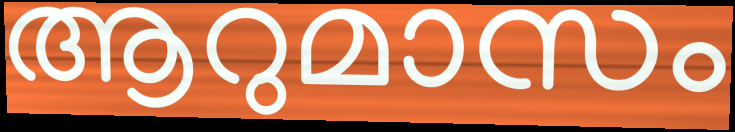
ആറുമാസം